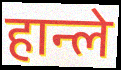
हान्ले